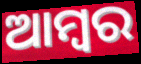
ଆମ୍ବର